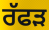
ਰੱਫੜ